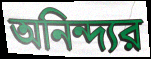
অনিন্দ্যর